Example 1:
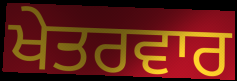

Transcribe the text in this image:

ਖੇਤਰਵਾਰ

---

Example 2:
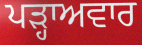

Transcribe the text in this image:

ਪੜ੍ਹਾਅਵਾਰ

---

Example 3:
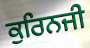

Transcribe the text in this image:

ਕੁਰਿਨਜੀ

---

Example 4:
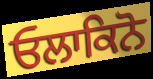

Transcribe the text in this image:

ਓਲਾਕਿਨੋ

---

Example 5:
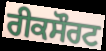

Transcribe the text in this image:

ਰੀਕਸੌਰਟ